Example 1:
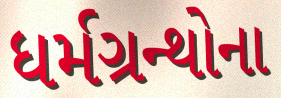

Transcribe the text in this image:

ધર્મગ્રન્થોના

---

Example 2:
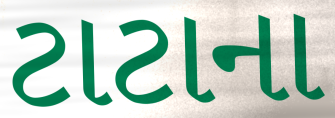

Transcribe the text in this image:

ટાટાના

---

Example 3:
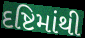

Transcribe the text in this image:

દષ્ટિમાંથી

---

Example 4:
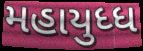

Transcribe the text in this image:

મહાયુધ્ધ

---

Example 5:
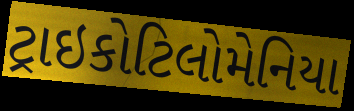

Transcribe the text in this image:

ટ્રાઇકોટિલોમેનિયા